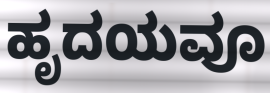
ಹೃದಯವೂ